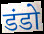
डंडो